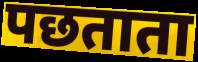
पछताता